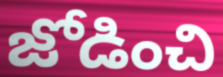
జోడించి